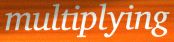
multiplying